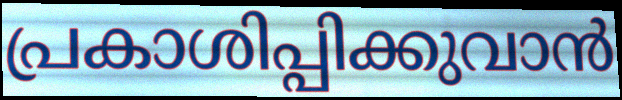
പ്രകാശിപ്പിക്കുവാൻ